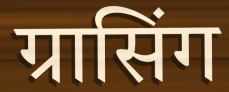
ग्रासिंग